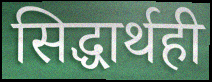
सिद्धार्थही